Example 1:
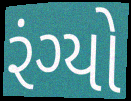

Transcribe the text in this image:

રંગ્યો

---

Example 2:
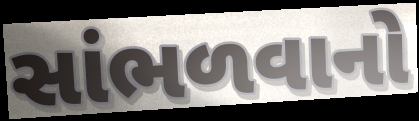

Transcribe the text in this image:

સાંભળવાનો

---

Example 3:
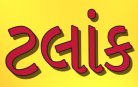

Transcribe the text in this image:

ટલાંક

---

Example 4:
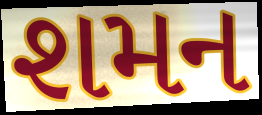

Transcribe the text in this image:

શમન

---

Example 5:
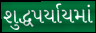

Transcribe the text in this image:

શુદ્ધપર્યાયમાં